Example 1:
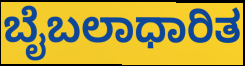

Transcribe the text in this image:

ಬೈಬಲಾಧಾರಿತ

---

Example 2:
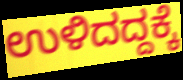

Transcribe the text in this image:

ಉಳಿದದ್ದಕ್ಕೆ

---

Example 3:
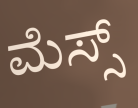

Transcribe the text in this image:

ಮೆಸ್ಸ್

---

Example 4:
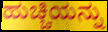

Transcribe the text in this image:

ಹುಚ್ಚಿಯನ್ನು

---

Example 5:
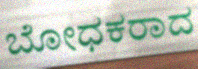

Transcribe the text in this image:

ಬೋಧಕರಾದ